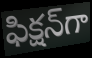
ఫిక్షన్‌గా